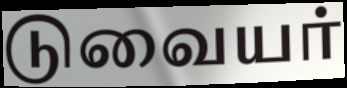
டுவையர்